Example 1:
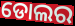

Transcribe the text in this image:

ଡୋଲର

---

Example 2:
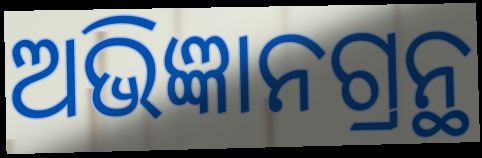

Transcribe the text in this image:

ଅଭିଜ୍ଞାନଗ୍ରନ୍ଥ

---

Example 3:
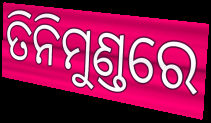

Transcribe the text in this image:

ତିନିମୁଣ୍ଡରେ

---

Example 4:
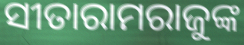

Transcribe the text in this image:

ସୀତାରାମରାଜୁଙ୍କ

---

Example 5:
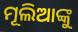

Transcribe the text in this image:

ମୂଲିଆଙ୍କୁ